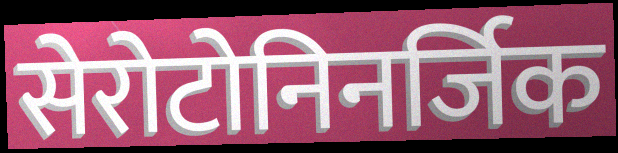
सेरोटोनिनर्जिक